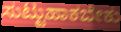
ಸುಟ್ಟುಹಾಕಬೇಕು